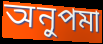
অনুপমা